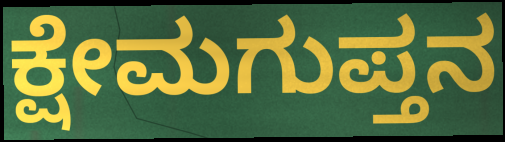
ಕ್ಷೇಮಗುಪ್ತನ